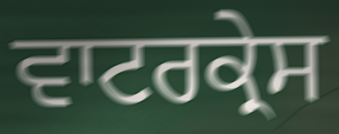
ਵਾਟਰਕ੍ਰੇਸ